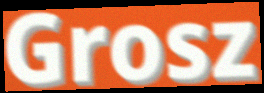
Grosz